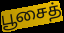
பூசைத்